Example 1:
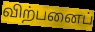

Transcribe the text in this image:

விற்பனைப்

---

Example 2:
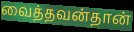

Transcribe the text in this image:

வைத்தவன்தான்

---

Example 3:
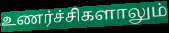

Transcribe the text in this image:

உணர்ச்சிகளாலும்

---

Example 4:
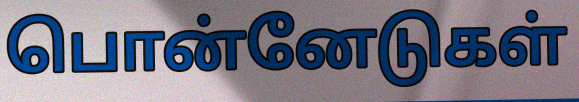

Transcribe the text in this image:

பொன்னேடுகள்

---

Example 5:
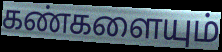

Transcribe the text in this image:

கண்களையும்